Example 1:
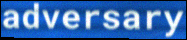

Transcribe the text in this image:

adversary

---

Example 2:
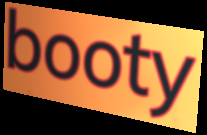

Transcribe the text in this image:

booty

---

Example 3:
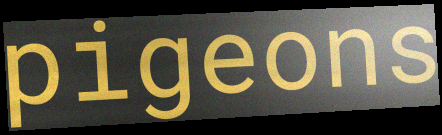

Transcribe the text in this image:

pigeons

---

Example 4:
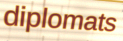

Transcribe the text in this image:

diplomats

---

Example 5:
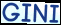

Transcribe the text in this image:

GINI